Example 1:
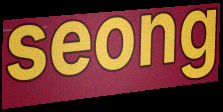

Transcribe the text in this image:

seong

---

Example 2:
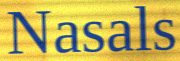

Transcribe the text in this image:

Nasals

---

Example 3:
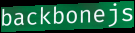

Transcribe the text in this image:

backbonejs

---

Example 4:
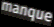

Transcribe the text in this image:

manque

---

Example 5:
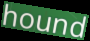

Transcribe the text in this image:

hound